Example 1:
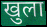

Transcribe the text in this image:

खुला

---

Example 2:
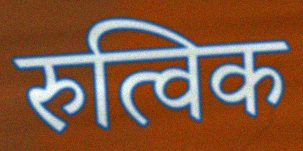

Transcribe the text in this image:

रुत्विक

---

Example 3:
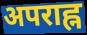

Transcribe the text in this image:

अपराह्न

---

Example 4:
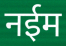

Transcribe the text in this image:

नईम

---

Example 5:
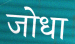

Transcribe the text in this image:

जोधा